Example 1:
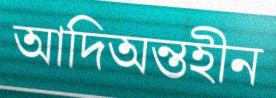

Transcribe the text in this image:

আদিঅন্তহীন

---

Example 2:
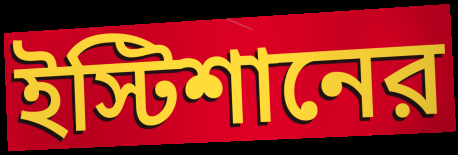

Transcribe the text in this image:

ইস্টিশানের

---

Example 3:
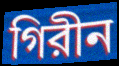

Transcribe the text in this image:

গিরীন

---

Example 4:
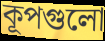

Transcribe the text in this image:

কূপগুলো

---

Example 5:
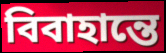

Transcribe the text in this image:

বিবাহান্তে